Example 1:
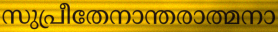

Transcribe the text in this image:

സുപ്രീതേനാന്തരാത്മനാ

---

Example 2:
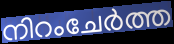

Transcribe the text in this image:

നിറംചേർത്ത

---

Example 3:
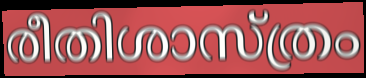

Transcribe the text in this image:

രീതിശാസ്ത്രം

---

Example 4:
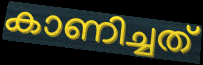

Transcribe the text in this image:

കാണിച്ചത്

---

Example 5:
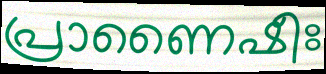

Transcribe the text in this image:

പ്രാണൈഷീഃ